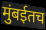
मुंबईतच